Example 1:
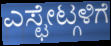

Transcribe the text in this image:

ಎಸ್ಟೇಟ್ಗಳಿಗೆ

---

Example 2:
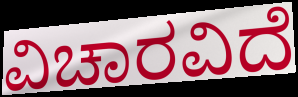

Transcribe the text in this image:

ವಿಚಾರವಿದೆ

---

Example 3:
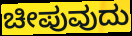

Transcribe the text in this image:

ಚೀಪುವುದು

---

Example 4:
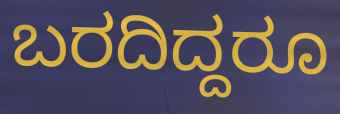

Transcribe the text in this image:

ಬರದಿದ್ದರೂ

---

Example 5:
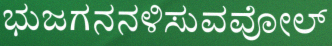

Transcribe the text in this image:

ಭುಜಗನನಳಿಸುವವೋಲ್